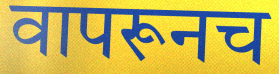
वापरूनच